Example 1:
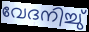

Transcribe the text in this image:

വേദനിച്ചു്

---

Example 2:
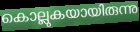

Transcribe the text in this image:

കൊല്ലുകയായിരുന്നു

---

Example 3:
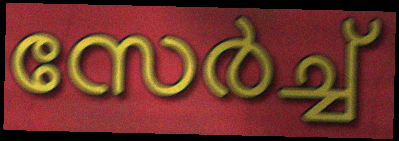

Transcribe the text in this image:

സേർച്ച്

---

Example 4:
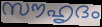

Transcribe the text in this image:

സൗഹൃദം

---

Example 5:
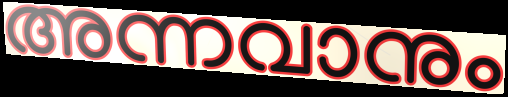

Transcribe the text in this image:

അന്നവാനും